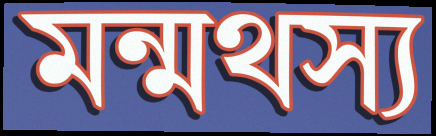
মন্মথস্য